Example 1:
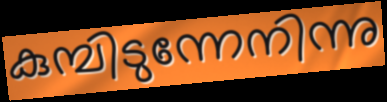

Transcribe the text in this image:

കുമ്പിടുന്നേനിന്നു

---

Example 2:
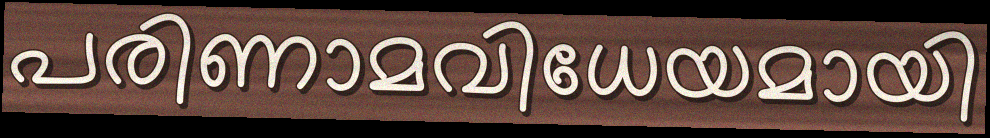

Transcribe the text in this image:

പരിണാമവിധേയമായി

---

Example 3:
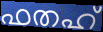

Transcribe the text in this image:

ഫതഹ്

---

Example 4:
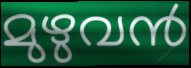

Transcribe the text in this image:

മുഴുവൻ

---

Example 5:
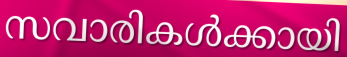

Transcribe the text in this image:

സവാരികൾക്കായി